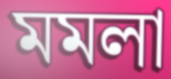
মমলা